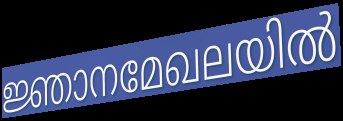
ജ്ഞാനമേഖലയിൽ